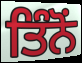
ਤਿੰਨੋਂ